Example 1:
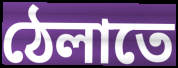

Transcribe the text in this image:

ঠেলাতে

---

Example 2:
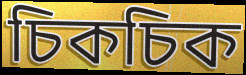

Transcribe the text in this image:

চিকচিক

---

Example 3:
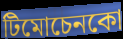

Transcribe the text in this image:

টিমোচেনকো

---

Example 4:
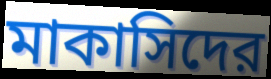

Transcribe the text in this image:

মাকাসিদের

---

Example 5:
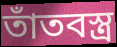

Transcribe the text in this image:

তাঁতবস্ত্র